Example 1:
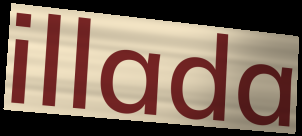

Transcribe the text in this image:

illada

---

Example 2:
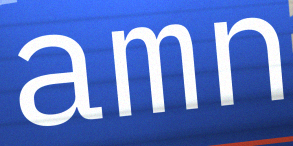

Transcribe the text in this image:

amn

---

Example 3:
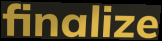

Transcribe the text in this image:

finalize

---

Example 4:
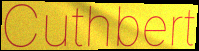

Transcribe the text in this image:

Cuthbert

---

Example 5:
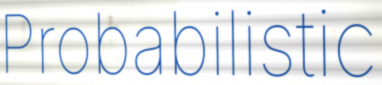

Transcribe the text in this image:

Probabilistic